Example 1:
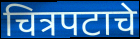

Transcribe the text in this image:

चित्रपटाचे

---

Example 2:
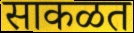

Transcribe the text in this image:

साकळत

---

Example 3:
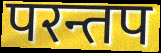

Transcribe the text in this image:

परन्तप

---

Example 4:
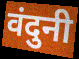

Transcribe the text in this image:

वंदुनी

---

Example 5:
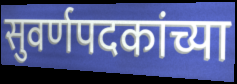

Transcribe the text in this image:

सुवर्णपदकांच्या